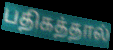
பதிகத்தால்